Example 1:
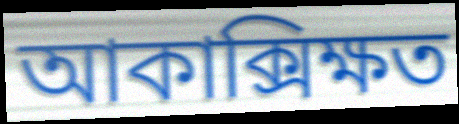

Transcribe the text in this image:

আকাক্সিক্ষত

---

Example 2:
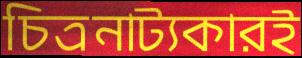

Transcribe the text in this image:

চিত্রনাট্যকারই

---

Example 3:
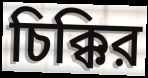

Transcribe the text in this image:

চিক্কির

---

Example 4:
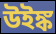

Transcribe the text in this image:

উইঙ্ক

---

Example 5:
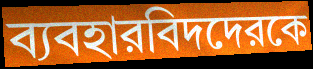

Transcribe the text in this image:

ব্যবহারবিদদেরকে